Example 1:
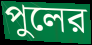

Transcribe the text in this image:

পুলের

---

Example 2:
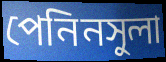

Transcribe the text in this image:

পেনিনসুলা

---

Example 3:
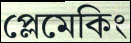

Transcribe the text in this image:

প্লেমেকিং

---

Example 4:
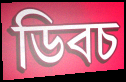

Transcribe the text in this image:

ডিবচ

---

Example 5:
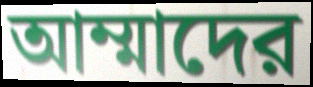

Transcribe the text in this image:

আম্মাদের